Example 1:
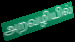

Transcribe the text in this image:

அறவழியில்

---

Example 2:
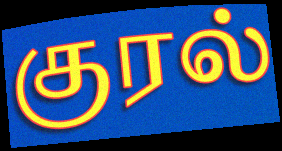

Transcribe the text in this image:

குரல்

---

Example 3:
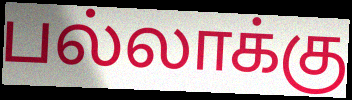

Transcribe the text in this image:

பல்லாக்கு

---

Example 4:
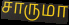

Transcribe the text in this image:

சாருமா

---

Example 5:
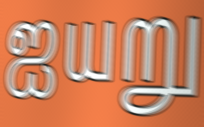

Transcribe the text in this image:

ஐயறு